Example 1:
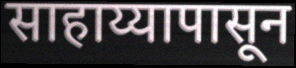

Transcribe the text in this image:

साहाय्यापासून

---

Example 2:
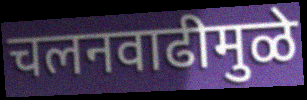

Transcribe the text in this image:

चलनवाढीमुळे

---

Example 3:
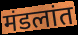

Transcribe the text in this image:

मंडलांत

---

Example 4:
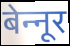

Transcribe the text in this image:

बेन्नूर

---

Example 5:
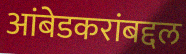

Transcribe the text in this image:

आंबेडकरांबद्दल